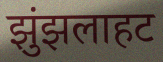
झुंझलाहट